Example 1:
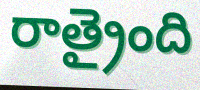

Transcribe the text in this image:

రాత్రైంది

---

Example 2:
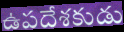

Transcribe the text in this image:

ఉపదేశకుడు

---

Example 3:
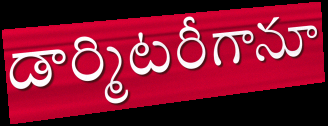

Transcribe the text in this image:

డార్మిటరీగానూ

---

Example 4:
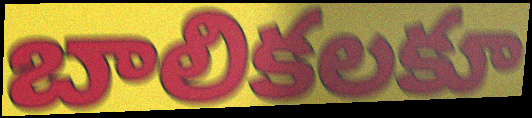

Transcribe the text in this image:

బాలికలకూ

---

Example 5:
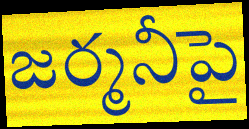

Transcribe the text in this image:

జర్మనీపై